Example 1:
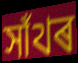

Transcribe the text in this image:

সাঁথৰ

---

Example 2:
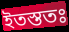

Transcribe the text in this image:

ইতস্ততঃ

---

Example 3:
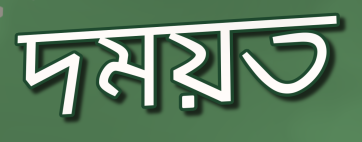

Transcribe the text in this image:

দময়ত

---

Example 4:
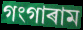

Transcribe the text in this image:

গংগাৰাম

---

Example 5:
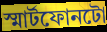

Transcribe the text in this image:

স্মাৰ্টফোনটো